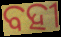
ବହୀ